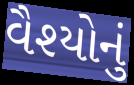
વૈશ્યોનું